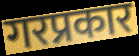
गरप्रकार